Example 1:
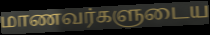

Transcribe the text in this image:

மாணவர்களுடைய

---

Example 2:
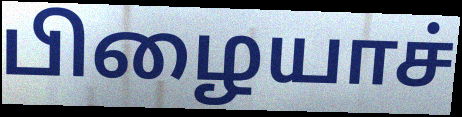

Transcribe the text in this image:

பிழையாச்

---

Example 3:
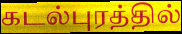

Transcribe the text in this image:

கடல்புரத்தில்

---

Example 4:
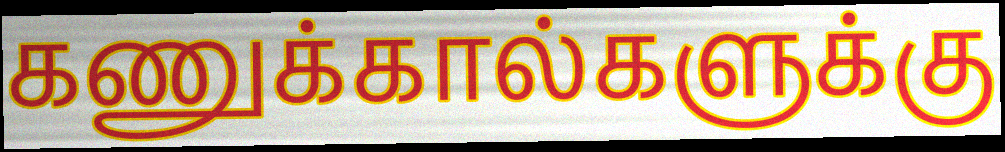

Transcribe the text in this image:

கணுக்கால்களுக்கு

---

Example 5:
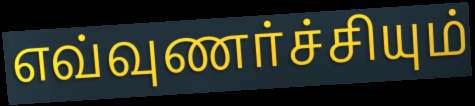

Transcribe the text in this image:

எவ்வுணர்ச்சியும்